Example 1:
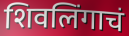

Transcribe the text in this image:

शिवलिंगाचं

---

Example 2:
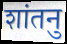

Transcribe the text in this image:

शांतनु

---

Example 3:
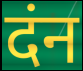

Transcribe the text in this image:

दंन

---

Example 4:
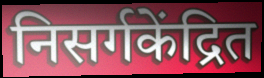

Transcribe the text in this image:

निसर्गकेंद्रित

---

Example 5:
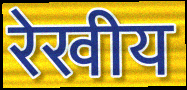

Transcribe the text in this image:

रेखीय